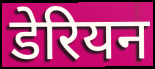
डेरियन